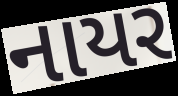
નાયર